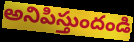
అనిపిస్తుందండి